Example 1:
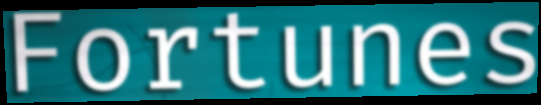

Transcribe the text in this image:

Fortunes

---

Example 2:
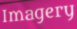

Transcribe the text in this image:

Imagery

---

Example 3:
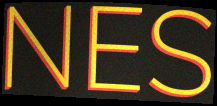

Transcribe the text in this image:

NES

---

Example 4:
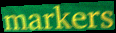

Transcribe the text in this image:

markers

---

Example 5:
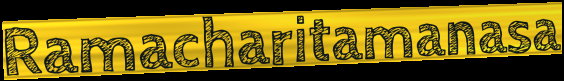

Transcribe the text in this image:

Ramacharitamanasa